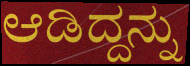
ಆಡಿದ್ದನ್ನು